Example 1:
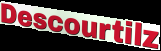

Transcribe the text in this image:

Descourtilz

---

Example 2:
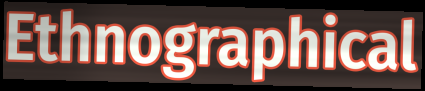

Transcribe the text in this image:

Ethnographical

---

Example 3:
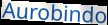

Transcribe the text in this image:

Aurobindo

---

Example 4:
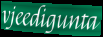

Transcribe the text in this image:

vjeedigunta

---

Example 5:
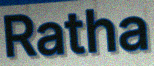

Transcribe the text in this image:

Ratha